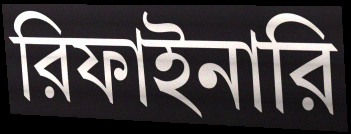
রিফাইনারি